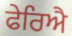
ਫੇਰਿਐ